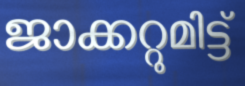
ജാക്കറ്റുമിട്ട്